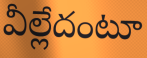
వీల్లేదంటూ